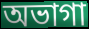
অভাগা